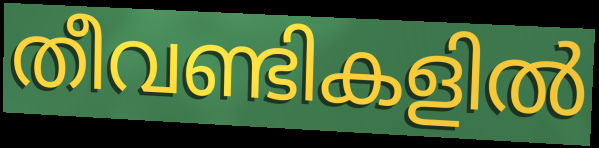
തീവണ്ടികളിൽ